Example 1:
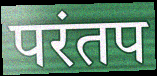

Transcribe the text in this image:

परंतप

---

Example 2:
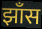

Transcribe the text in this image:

झाँस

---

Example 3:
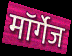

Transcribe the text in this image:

मॉर्गेज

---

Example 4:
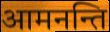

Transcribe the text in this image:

आमनन्ति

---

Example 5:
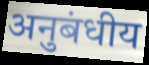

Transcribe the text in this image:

अनुबंधीय